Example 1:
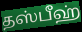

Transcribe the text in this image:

தஸ்பீஹ்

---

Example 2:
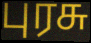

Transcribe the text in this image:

புரசு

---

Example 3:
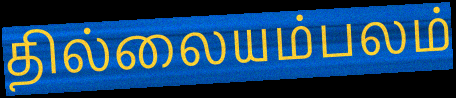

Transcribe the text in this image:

தில்லையம்பலம்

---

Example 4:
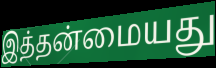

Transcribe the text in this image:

இத்தன்மையது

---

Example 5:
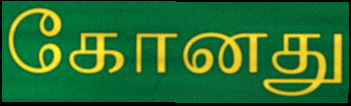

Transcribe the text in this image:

கோனது